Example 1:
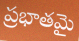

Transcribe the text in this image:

ప్రభాతమై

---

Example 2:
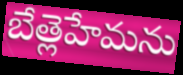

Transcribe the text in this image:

బేత్లెహేమను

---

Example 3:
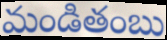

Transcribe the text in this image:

మండితంబు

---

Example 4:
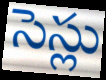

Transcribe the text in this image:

సెస్లు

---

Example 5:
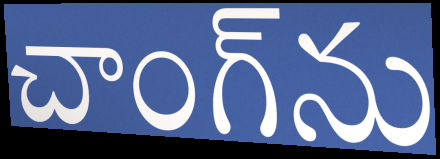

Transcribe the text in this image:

చాంగ్‌ను